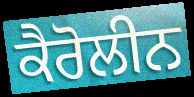
ਕੈਰੋਲੀਨ